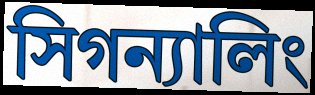
সিগন্যালিং